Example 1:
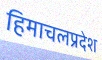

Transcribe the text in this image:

हिमाचलप्रदेश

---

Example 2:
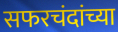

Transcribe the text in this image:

सफरचंदांच्या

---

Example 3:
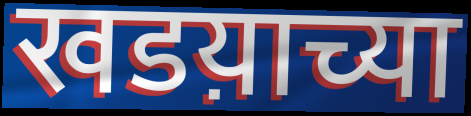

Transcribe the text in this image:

खडय़ाच्या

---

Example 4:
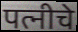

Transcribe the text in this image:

पत्‍नीचे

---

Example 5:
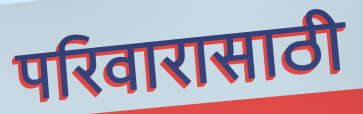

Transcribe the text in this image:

परिवारासाठी